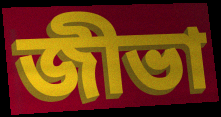
জীভা